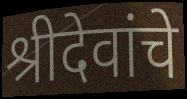
श्रीदेवांचे